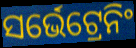
ସର୍ଭେଟ୍ରେନିଂ